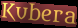
Kubera